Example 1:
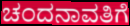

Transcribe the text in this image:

ಚಂದನಾವತಿಗೆ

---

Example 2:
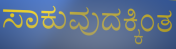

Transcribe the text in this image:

ಸಾಕುವುದಕ್ಕಿಂತ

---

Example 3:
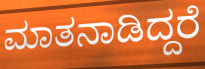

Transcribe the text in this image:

ಮಾತನಾಡಿದ್ದರೆ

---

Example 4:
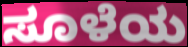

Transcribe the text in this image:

ಸೂಳೆಯ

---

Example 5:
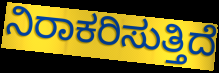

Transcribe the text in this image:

ನಿರಾಕರಿಸುತ್ತಿದೆ